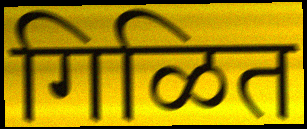
गिळित